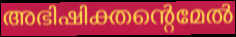
അഭിഷിക്തന്റെമേൽ